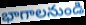
భాగాలనుండి